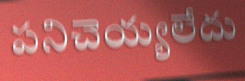
పనిచెయ్యలేదు